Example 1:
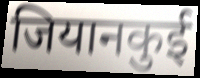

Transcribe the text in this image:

जियानकुई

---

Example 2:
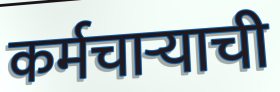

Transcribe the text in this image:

कर्मचाऱ्याची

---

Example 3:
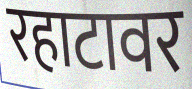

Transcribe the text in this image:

रहाटावर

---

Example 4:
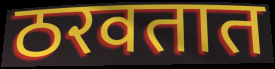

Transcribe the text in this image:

ठरवतात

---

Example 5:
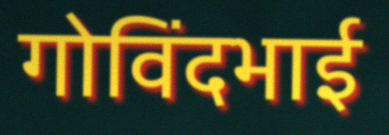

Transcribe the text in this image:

गोविंदभाई